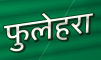
फुलेहरा